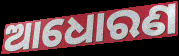
ଆଧୋରଣ